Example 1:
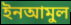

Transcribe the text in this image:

ইনআমুল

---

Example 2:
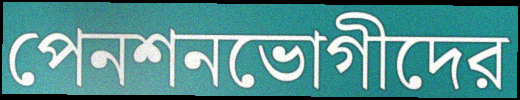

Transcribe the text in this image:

পেনশনভোগীদের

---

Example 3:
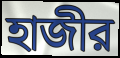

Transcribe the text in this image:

হাজীর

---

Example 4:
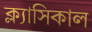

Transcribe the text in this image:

ক্ল্যাসিকাল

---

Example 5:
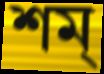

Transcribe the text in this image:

শম্